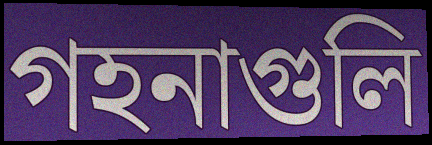
গহনাগুলি